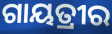
ଗାୟତ୍ରୀର